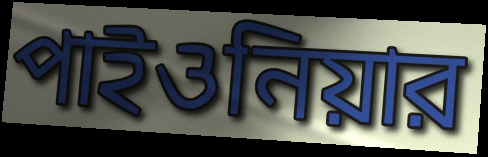
পাইওনিয়ার